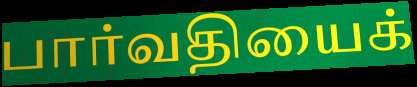
பார்வதியைக்